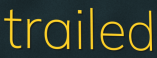
trailed